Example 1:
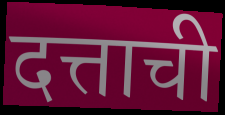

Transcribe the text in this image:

दत्ताची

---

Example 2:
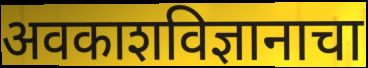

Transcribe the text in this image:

अवकाशविज्ञानाचा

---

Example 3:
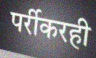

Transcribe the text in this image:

पर्रीकरही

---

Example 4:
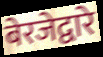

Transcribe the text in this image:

बेरजेद्वारे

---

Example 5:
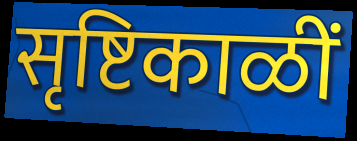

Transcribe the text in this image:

सृष्टिकाळीं